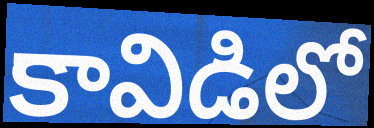
కావిడిలో